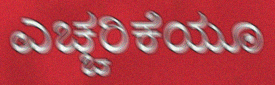
ಎಚ್ಚರಿಕೆಯೂ